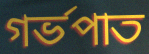
গৰ্ভপাত